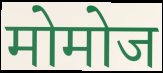
मोमोज